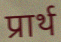
प्रार्थ